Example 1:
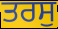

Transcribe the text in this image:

ਤਰਸੁ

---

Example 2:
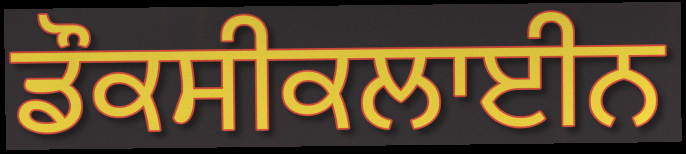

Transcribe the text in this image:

ਡੌਕਸੀਕਲਾਈਨ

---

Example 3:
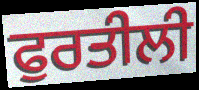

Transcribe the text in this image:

ਫੁਰਤੀਲੀ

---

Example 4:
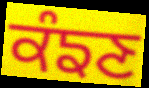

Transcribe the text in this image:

ਕੰਙਣ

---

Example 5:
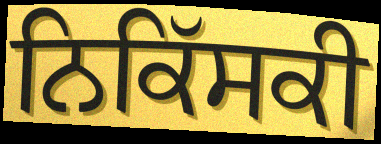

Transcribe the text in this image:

ਨਿਕਿੱਸਕੀ